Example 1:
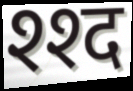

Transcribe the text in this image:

श्श्द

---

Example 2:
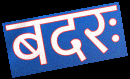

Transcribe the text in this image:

बदरः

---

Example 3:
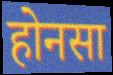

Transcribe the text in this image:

होनसा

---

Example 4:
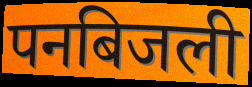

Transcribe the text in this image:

पनबिजली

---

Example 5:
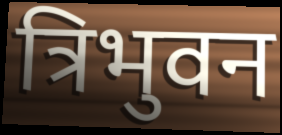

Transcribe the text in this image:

त्रिभुवन